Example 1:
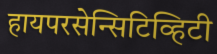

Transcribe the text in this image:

हायपरसेन्सिटिव्हिटी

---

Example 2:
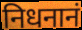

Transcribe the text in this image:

निधनानं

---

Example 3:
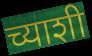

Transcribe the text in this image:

च्याशी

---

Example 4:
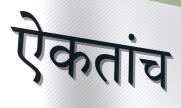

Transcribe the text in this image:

ऐकतांच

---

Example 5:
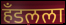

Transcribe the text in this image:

हँडलला